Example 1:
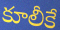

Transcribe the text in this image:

కూలీకే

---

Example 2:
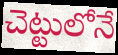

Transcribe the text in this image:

చెట్టులోనే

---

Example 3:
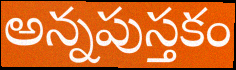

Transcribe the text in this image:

అన్నపుస్తకం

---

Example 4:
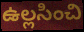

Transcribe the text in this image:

ఉల్లసించి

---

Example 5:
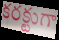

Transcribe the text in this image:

కరక్టుగా